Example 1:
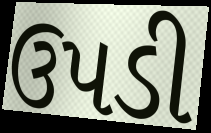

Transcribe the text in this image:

ઉપડી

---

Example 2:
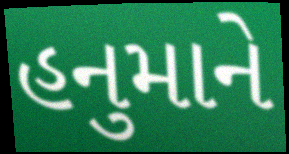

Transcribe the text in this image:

હનુમાને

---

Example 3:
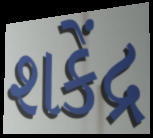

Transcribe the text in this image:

શકેંદ્ર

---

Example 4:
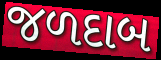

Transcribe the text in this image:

જળદાબ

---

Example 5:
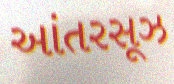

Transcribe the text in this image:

આંતરસૂઝ